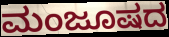
ಮಂಜೂಷದ